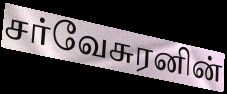
சர்வேசுரனின்